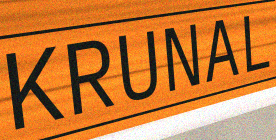
KRUNAL